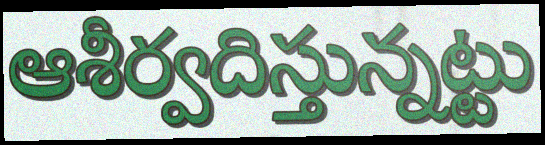
ఆశీర్వదిస్తున్నట్టు